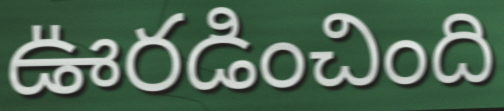
ఊరడించింది